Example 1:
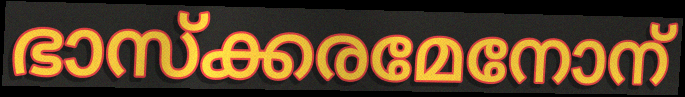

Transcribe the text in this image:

ഭാസ്ക്കരമേനോന്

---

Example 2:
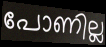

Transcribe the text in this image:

പോണില്ല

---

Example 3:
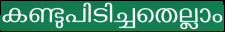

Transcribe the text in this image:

കണ്ടുപിടിച്ചതെല്ലാം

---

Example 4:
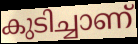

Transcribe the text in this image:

കുടിച്ചാണ്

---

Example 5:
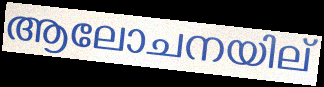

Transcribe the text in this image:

ആലോചനയില്